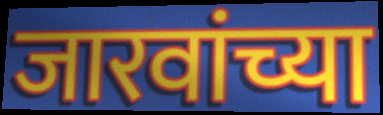
जारवांच्या